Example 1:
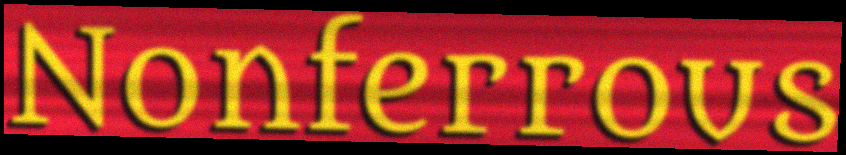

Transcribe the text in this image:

Nonferrous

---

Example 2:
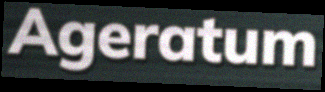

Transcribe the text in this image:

Ageratum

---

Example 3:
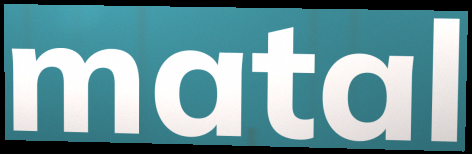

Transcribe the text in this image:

matal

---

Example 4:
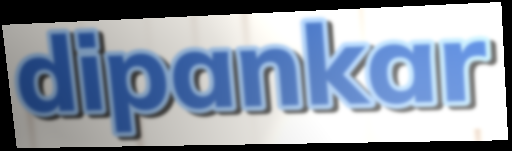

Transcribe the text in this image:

dipankar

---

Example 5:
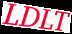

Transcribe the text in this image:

LDLT